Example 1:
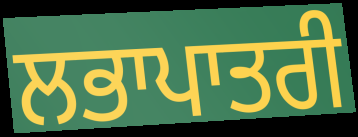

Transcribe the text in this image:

ਲਭਾਪਾਤਰੀ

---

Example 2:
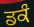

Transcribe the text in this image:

ਡਕੰ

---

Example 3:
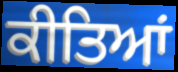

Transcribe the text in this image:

ਕੀਤਿਆਂ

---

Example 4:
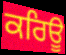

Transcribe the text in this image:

ਕਰਿਊ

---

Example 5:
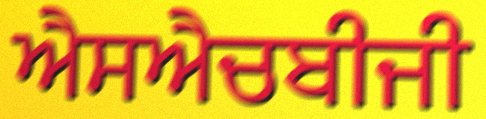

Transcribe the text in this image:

ਐਸਐਚਬੀਜੀ